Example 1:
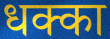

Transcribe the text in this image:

धक्का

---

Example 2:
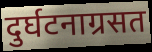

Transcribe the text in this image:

दुर्घटनाग्रसत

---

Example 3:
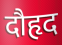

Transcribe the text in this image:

दौहृद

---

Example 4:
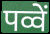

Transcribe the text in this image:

पव्वें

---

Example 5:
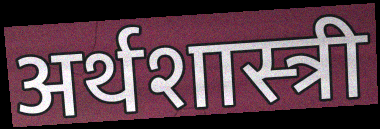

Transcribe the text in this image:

अर्थशास्त्री